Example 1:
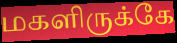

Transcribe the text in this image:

மகளிருக்கே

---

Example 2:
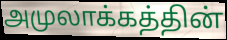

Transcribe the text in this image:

அமுலாக்கத்தின்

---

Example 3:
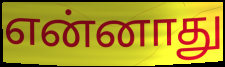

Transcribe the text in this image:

என்னாது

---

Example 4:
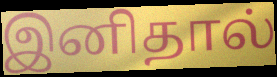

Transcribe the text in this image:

இனிதால்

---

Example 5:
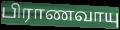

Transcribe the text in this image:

பிராணவாயு